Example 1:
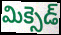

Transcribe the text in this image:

మిక్సెడ్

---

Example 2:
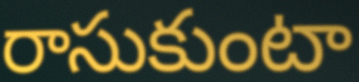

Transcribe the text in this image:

రాసుకుంటా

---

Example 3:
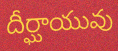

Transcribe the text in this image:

దీర్ఘాయువు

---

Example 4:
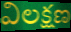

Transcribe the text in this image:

విలక్షణ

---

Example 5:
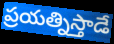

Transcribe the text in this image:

ప్రయత్నిస్తాడే